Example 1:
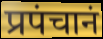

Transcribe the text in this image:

प्रपंचानं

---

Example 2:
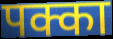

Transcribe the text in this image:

पक्का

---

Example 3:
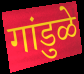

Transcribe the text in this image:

गांडुळे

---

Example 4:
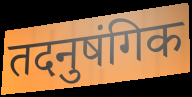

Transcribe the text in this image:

तदनुषंगिक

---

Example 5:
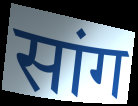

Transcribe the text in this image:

सांग